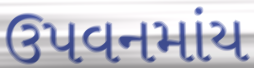
ઉપવનમાંય